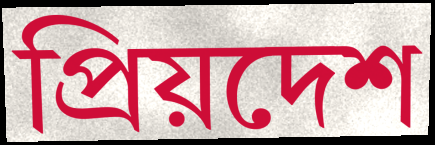
প্রিয়দেশ